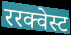
ररक्वेस्ट